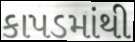
કાપડમાંથી